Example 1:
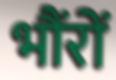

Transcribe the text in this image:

भौंरों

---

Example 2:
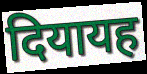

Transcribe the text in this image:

दियायह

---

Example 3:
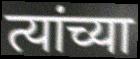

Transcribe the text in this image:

त्यांच्या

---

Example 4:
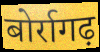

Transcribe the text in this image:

बोर्रागढ़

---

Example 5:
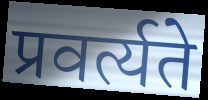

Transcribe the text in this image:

प्रवर्त्यते